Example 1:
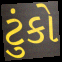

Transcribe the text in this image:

ટુંકો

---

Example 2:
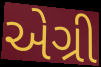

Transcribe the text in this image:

એગ્રી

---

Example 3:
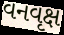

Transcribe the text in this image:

વનવૃક્ષ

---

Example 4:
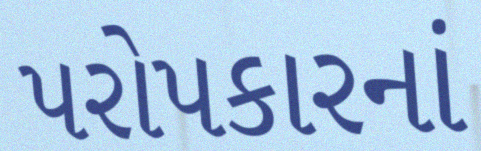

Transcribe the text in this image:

પરોપકારનાં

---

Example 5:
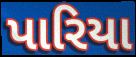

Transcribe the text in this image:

પારિયા